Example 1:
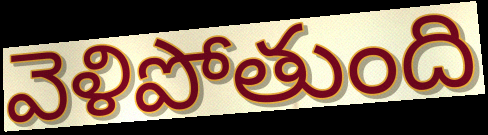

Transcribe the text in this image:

వెళిపోతుంది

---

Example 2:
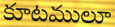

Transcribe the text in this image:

కూటములూ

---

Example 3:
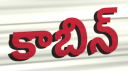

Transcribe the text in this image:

కాబిన్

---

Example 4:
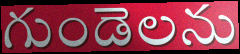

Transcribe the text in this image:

గుండెలను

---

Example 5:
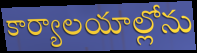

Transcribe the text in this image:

కార్యాలయాల్లోను